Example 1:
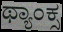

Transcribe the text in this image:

ಥ್ಯಾಂಕ್ಸ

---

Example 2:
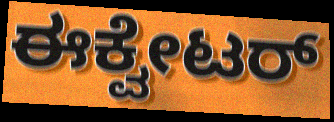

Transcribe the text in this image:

ಈಕ್ವೇಟರ್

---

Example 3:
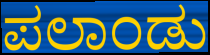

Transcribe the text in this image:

ಪಲಾಂಡು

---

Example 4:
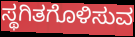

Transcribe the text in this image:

ಸ್ಥಗಿತಗೊಳಿಸುವ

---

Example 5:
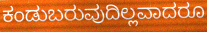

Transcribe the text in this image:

ಕಂಡುಬರುವುದಿಲ್ಲವಾದರೂ